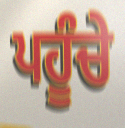
ਪਹੂੰਚੇ